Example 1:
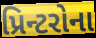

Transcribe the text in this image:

પ્રિન્ટરોના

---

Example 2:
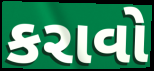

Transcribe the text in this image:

કરાવો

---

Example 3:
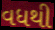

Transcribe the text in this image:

વધથી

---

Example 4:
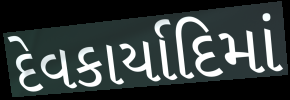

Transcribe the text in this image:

દેવકાર્યાદિમાં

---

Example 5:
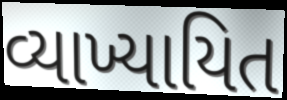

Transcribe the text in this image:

વ્યાખ્યાયિત